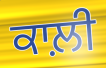
ਕਾਲ਼ੀ